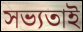
সভ্যতাই